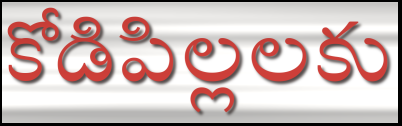
కోడిపిల్లలకు